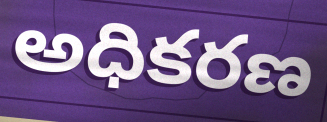
అధికరణ